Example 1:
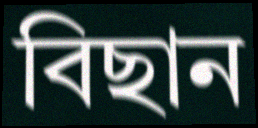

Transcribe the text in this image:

বিছান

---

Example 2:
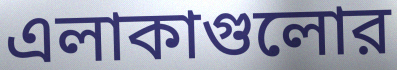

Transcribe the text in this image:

এলাকাগুলোর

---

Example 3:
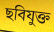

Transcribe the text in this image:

ছবিযুক্ত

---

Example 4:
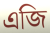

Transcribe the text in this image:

এজি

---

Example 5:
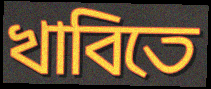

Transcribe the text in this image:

খাবিতে